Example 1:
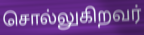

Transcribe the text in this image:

சொல்லுகிறவர்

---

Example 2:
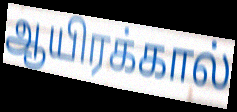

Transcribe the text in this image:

ஆயிரக்கால்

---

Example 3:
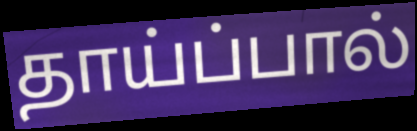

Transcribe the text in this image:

தாய்ப்பால்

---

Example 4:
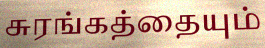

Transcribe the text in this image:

சுரங்கத்தையும்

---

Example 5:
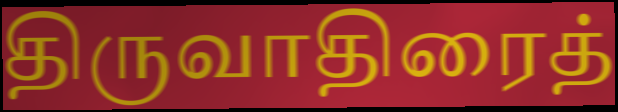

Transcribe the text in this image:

திருவாதிரைத்